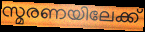
സ്മരണയിലേക്ക്